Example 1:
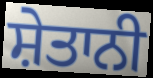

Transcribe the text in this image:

ਸ਼ੇਤਾਨੀ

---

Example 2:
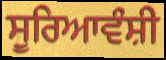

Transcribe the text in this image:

ਸੂਰਿਆਵੰਸ਼ੀ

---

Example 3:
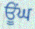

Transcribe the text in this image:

ਊਂਘ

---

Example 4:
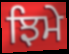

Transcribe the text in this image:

ਝਿਮੇ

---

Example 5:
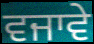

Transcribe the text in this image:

ਵਜਾਵੇ